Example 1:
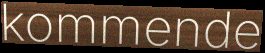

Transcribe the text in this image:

kommende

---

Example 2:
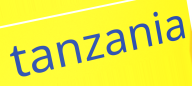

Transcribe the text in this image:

tanzania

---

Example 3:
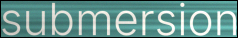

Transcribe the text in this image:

submersion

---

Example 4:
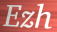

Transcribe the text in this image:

Ezh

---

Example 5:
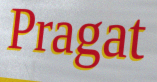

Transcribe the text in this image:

Pragat